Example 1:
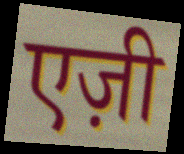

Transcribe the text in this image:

एज़ी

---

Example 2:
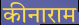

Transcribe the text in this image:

कीनाराम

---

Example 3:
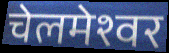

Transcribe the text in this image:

चेलमेश्वर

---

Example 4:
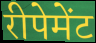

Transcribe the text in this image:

रीपेमेंट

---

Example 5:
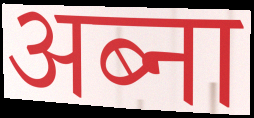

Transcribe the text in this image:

अब्ना